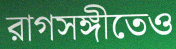
রাগসঙ্গীতেও